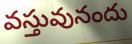
వస్తువునందు